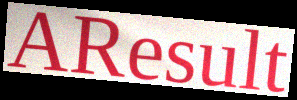
AResult